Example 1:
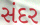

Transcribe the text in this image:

સંદર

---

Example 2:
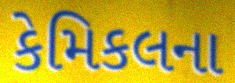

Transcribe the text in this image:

કેમિકલના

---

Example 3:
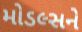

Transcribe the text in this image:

મોડલ્સને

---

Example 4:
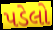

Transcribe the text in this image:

પડેલો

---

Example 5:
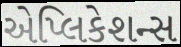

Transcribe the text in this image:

એપ્લિકેશન્સ